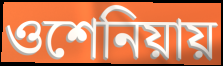
ওশেনিয়ায়